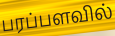
பரப்பளவில்